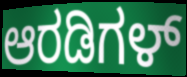
ಆರಡಿಗಳ್